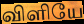
விளியே